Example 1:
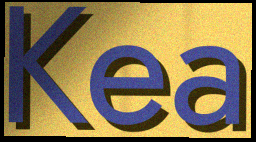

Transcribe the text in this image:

Kea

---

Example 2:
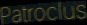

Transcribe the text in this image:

Patroclus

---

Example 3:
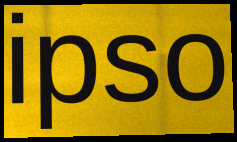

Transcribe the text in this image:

ipso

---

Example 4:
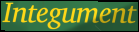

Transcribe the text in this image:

Integument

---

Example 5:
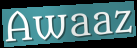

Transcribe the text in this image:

Awaaz